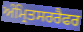
ਅੰਮ੍ਰਿਤਸਰਰੈਫਰ